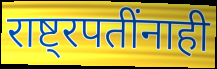
राष्ट्रपतींनाही